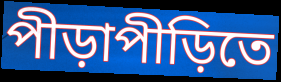
পীড়াপীড়িতে